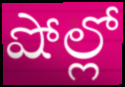
షోల్లో